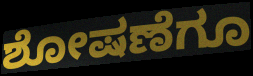
ಶೋಷಣೆಗೂ